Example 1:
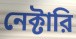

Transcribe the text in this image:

নেক্টারি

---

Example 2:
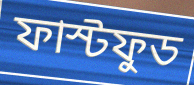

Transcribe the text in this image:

ফাস্টফুড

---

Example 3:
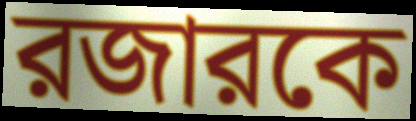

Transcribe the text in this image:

রজারকে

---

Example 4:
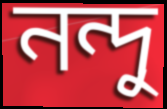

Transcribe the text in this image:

নন্দু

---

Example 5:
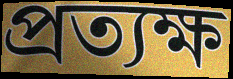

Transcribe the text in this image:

প্রত্যক্ষ